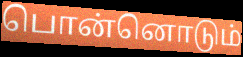
பொன்னொடும்